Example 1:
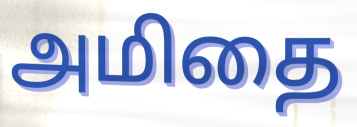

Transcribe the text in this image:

அமிதை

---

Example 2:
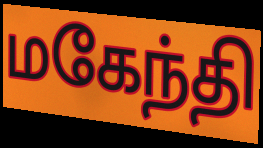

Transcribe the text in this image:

மகேந்தி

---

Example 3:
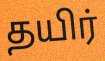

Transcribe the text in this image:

தயிர்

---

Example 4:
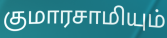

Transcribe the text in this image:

குமாரசாமியும்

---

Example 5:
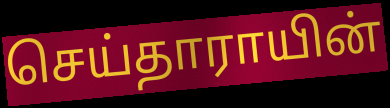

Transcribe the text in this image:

செய்தாராயின்